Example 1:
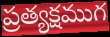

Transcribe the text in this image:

ప్రత్యక్షముగ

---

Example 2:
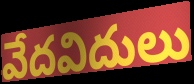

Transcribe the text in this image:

వేదవిదులు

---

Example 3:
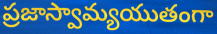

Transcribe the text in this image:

ప్రజాస్వామ్యయుతంగా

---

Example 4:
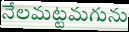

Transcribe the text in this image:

నేలమట్టమగును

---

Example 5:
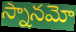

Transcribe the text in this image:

స్నానమో